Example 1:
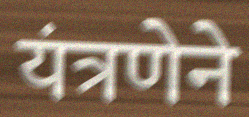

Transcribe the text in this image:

यंत्रणेने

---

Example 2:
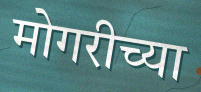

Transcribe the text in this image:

मोगरीच्या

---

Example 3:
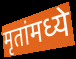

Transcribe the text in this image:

मृतांमध्ये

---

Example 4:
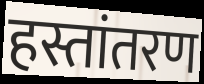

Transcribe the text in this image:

हस्तांतरण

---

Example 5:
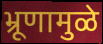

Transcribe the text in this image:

भ्रूणामुळे